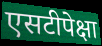
एसटीपेक्षा